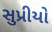
સુપ્રીયો